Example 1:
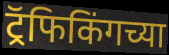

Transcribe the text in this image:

ट्रॅफिकिंगच्या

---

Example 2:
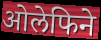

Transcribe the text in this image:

ओलेफिने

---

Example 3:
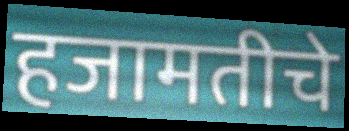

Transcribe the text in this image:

हजामतीचे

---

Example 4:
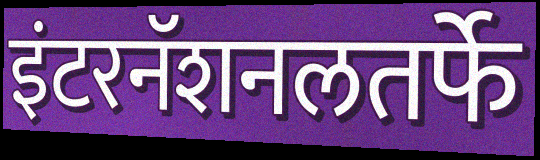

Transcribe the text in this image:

इंटरनॅशनलतर्फे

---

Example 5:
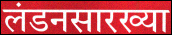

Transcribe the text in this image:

लंडनसारख्या